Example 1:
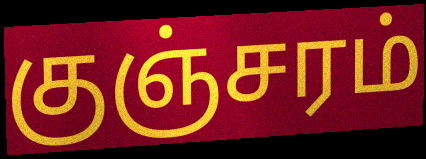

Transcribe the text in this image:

குஞ்சரம்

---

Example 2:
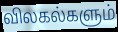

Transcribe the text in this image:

விலகல்களும்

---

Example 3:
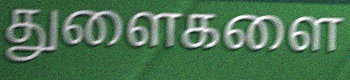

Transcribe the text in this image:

துளைகளை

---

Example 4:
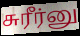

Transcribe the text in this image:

சுரீர்னு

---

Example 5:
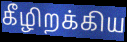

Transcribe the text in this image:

கீழிறக்கிய